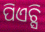
ପିଏଚ୍ସି